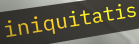
iniquitatis